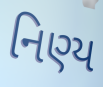
નિણ્ય